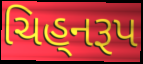
ચિહ્‌નરૂપ